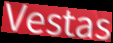
Vestas